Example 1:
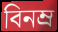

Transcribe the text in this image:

বিনম্র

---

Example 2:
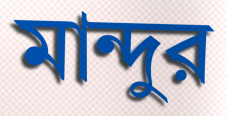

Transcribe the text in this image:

মান্দুর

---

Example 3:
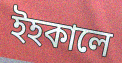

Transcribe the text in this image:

ইহকালে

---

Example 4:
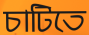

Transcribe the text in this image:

চাটিতে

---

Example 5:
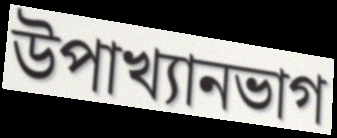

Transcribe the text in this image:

উপাখ্যানভাগ